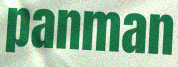
panman